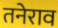
तनेराव